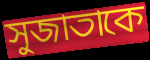
সুজাতাকে